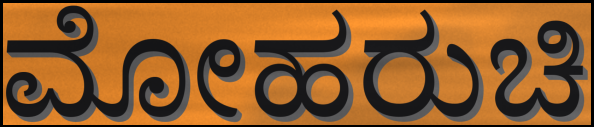
ಮೋಹರುಚಿ